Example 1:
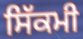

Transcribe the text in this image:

ਸਿੱਕਮੀ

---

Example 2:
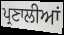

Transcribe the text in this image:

ਪ੍ਰਣਾਲੀਆਂ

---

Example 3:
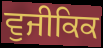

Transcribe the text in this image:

ਵੁਜੀਕਿਕ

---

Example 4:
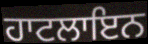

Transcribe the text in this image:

ਹਾਟਲਾਇਨ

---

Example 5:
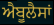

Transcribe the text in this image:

ਐਬੂਲੈਸਾਂ